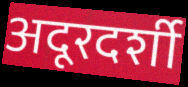
अदूरदर्शी